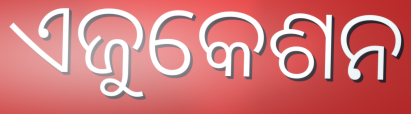
ଏଜୁକେଶନ